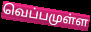
வெப்பமுள்ள